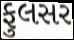
ફુલસર